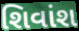
શિવાંશ